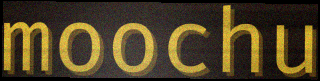
moochu